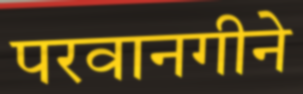
परवानगीने